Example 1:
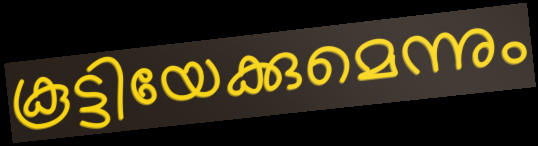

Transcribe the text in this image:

കൂട്ടിയേക്കുമെന്നും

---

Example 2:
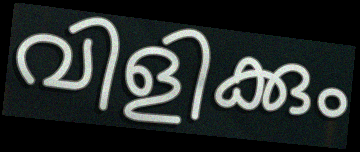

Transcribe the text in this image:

വിളിക്കും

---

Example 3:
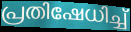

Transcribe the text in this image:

പ്രതിഷേധിച്ച്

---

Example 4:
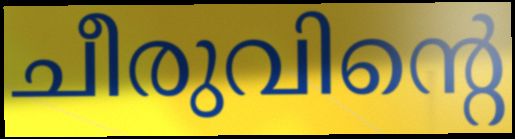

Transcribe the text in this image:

ചീരുവിന്റെ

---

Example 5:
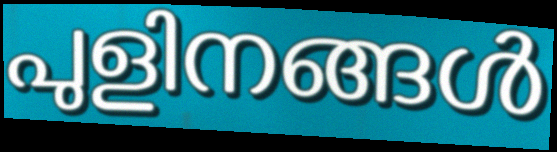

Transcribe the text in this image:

പുളിനങ്ങൾ